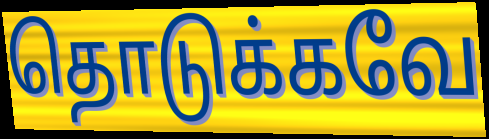
தொடுக்கவே